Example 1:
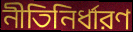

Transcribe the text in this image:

নীতিনির্ধারণ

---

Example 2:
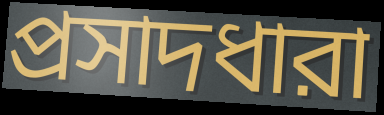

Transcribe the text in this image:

প্রসাদধারা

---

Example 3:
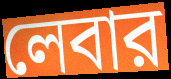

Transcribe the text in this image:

লেবার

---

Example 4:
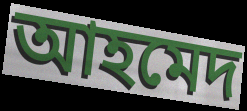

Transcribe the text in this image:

আহমেদ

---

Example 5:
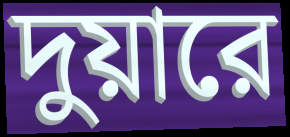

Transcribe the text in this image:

দুয়ারে